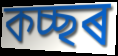
কচ্ছৰ